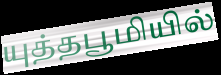
யுத்தபூமியில்